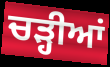
ਚੜ੍ਹੀਆਂ